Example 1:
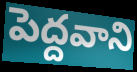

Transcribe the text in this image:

పెద్దవాని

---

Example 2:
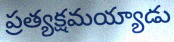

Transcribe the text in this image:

ప్రత్యక్షమయ్యాడు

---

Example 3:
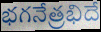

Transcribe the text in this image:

భగనేత్రభిదే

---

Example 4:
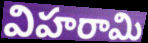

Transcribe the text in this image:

విహరామి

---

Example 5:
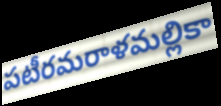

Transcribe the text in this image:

పటీరమరాళమల్లికా